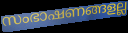
സംഭാഷണങ്ങളല്ല